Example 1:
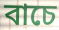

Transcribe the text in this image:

বাচে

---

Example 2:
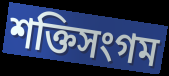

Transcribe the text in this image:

শক্তিসংগম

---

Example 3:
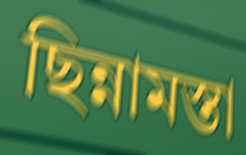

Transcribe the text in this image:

ছিন্নামস্তা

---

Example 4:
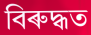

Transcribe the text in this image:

বিৰুদ্ধত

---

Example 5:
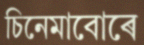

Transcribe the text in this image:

চিনেমাবোৰে